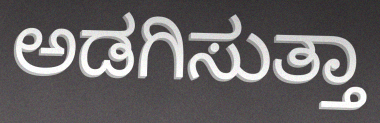
ಅಡಗಿಸುತ್ತಾ